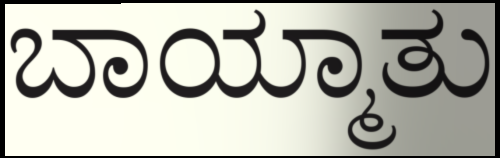
ಬಾಯ್ಮಾತು